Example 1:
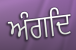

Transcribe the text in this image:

ਅੰਗਦਿ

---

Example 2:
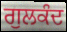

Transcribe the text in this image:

ਗੁਲਕੰਦ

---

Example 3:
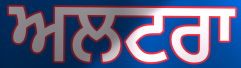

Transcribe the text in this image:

ਅਲਟਰਾ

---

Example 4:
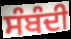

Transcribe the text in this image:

ਸੰਬੰਦੀ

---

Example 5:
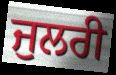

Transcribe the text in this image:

ਜੁਲਰੀ